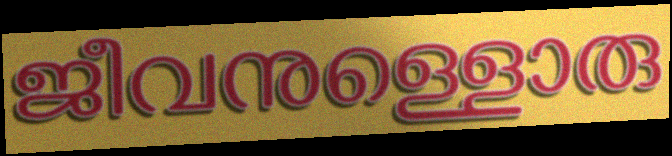
ജീവനുള്ളൊരു